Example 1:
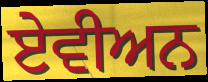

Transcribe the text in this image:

ਏਵੀਅਨ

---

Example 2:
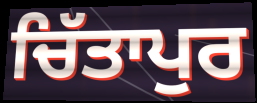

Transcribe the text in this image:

ਚਿੱਤਾਪੁਰ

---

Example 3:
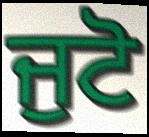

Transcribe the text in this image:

ਜੁਟੋ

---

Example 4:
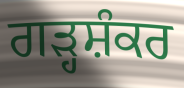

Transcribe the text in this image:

ਗੜ੍ਹਸ਼ੰਕਰ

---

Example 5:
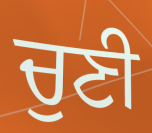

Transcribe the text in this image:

ਚੁਣੀ